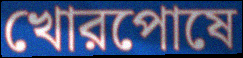
খোরপোষে